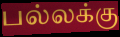
பல்லக்கு